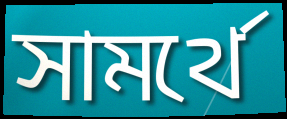
সামর্থে